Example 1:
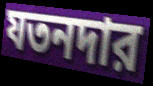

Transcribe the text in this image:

যতনদার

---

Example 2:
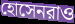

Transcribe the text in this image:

হোসেনরাও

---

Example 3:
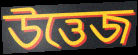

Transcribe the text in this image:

উত্তেজ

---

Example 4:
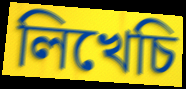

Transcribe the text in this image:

লিখেচি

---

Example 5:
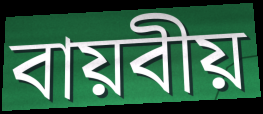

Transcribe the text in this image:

বায়বীয়